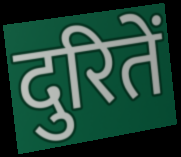
दुरितें